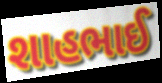
શાહભાઈ